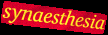
synaesthesia